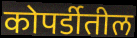
कोपर्डीतील